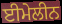
ਈਮੇਲੀਨ